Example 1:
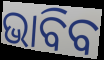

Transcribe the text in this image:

ଭାବିବ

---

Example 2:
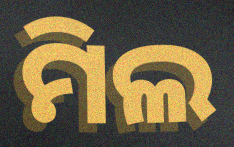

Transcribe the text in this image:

ମିଲ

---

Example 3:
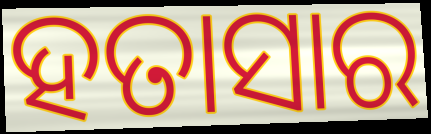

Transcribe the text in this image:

ହତାସାର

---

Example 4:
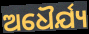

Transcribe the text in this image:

ଅଧୈର୍ଯ୍ୟ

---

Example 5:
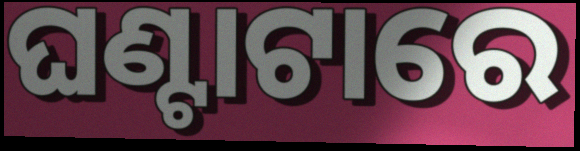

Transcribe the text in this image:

ଘଣ୍ଟାଟାରେ